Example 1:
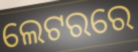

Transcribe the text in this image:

ଲେଟରରେ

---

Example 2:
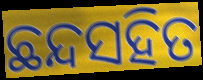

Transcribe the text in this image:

ଛନ୍ଦସହିତ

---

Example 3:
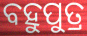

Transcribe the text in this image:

ବହୁପୁତ୍ର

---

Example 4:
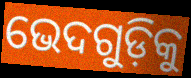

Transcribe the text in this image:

ଭେଦଗୁଡ଼ିକୁ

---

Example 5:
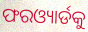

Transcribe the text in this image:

ଫରଓ୍ୟାର୍ଡକୁ